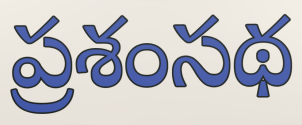
ప్రశంసథ